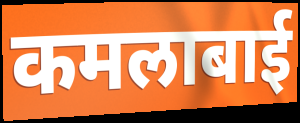
कमलाबाई